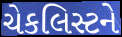
ચેકલિસ્ટને